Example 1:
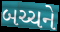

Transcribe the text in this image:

બચ્ચને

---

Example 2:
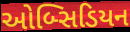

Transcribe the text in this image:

ઓબ્સિડિયન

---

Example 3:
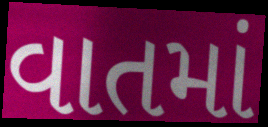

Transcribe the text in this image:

વાતમાં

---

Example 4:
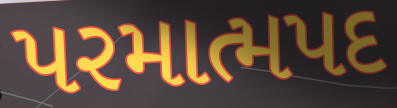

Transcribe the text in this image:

પરમાત્મપદ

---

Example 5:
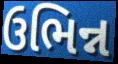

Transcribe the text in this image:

ઉભિન્ન